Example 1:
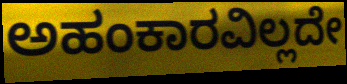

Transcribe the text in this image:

ಅಹಂಕಾರವಿಲ್ಲದೇ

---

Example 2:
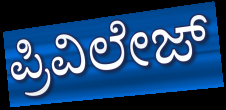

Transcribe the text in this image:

ಪ್ರಿವಿಲೇಜ್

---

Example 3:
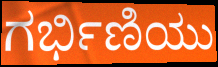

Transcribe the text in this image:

ಗರ್ಭಿಣಿಯು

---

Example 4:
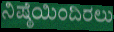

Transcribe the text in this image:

ನಿಷ್ಠೆಯಿಂದಿರಲು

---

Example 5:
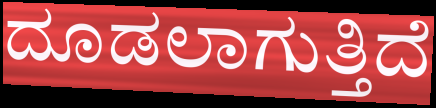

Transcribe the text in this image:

ದೂಡಲಾಗುತ್ತಿದೆ